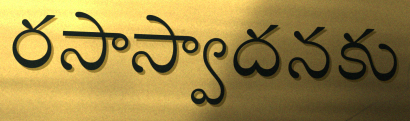
రసాస్వాదనకు